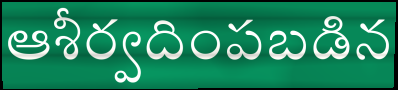
ఆశీర్వదింపబడిన